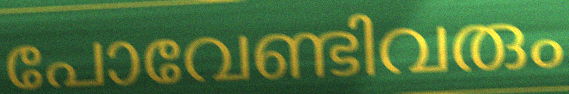
പോവേണ്ടിവരും